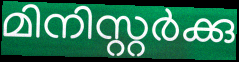
മിനിസ്റ്റർക്കു